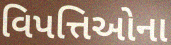
વિપત્તિઓના